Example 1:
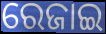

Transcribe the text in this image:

ରେଜାଇ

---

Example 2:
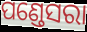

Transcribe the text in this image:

ପଣ୍ଡେସରା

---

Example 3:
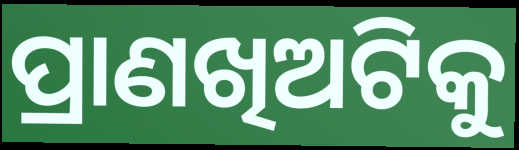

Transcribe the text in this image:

ପ୍ରାଣଖିଅଟିକୁ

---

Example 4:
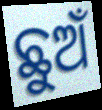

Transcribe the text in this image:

ଛୁଅଁ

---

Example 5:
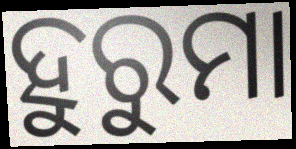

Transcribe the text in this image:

ହୁରୁମା